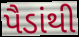
પૈડાંથી